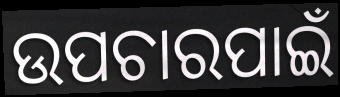
ଉପଚାରପାଇଁ